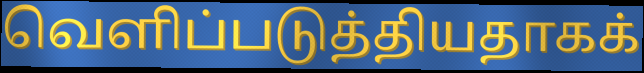
வெளிப்படுத்தியதாகக்